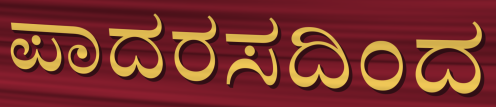
ಪಾದರಸದಿಂದ